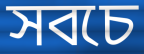
সবচে